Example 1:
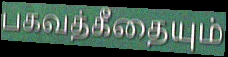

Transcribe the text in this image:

பகவத்கீதையும்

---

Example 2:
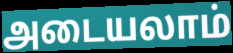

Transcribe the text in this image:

அடையலாம்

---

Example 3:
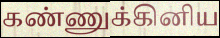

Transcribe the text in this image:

கண்ணுக்கினிய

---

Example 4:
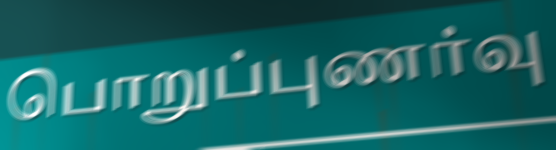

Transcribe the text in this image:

பொறுப்புணர்வு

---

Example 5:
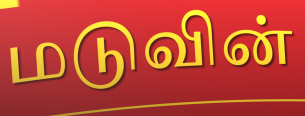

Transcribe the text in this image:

மடுவின்